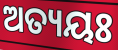
ଅତ୍ୟୟଃ